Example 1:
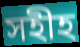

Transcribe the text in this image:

সহীহ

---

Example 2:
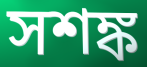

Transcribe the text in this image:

সশঙ্ক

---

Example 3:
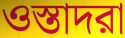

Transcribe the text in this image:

ওস্তাদরা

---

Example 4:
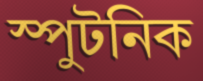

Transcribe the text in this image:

স্পুটনিক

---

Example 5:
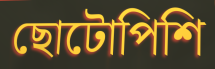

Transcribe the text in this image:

ছোটোপিশি